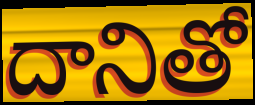
దానితో